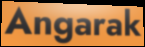
Angarak